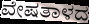
ವೇಷತಾಳದ